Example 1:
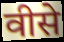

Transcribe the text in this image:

वीसे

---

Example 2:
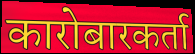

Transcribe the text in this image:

कारोबारकर्ता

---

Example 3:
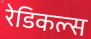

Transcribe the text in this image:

रेडिकल्स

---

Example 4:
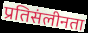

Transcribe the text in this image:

प्रतिसंलीनता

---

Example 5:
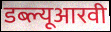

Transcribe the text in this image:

डब्ल्यूआरवी